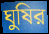
ঘুষির